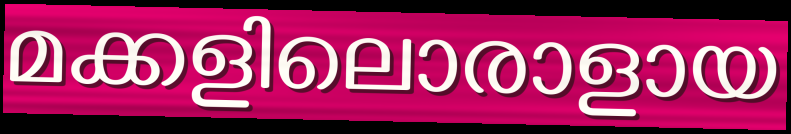
മക്കളിലൊരാളായ